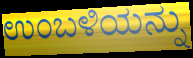
ಉಂಬಳಿಯನ್ನು